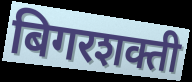
बिगरशक्ती